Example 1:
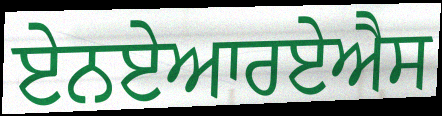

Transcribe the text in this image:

ਏਨਏਆਰਏਐਸ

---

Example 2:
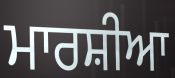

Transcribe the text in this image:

ਮਾਰਸ਼ੀਆ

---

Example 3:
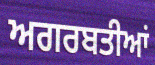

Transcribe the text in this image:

ਅਗਰਬਤੀਆਂ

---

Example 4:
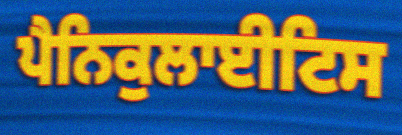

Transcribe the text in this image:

ਪੈਨਿਕੁਲਾਈਟਿਸ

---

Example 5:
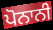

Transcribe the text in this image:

ਪੋਨਾਨੀ